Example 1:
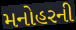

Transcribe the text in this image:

મનોહરની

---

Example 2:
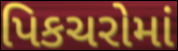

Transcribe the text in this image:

પિકચરોમાં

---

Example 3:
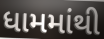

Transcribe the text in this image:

ધામમાંથી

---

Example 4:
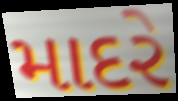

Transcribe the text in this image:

માદરે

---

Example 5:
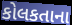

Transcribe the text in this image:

કોલકતાના